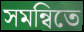
সমন্বিতে